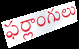
ఫర్లాంగులు